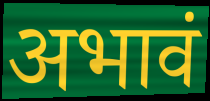
अभावं